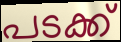
പടക്ക്